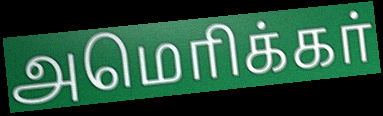
அமெரிக்கர்